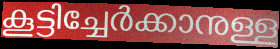
കൂട്ടിച്ചേർക്കാനുള്ള